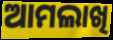
ଆମଲାଖି